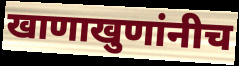
खाणाखुणांनीच